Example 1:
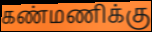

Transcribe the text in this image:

கண்மணிக்கு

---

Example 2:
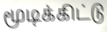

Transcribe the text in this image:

மூடிக்கிட்டு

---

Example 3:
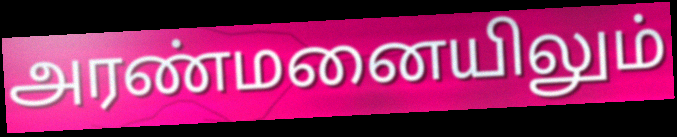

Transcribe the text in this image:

அரண்மனையிலும்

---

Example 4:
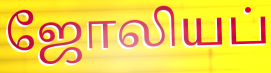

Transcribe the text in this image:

ஜோலியப்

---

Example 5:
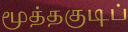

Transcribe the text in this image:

மூத்தகுடிப்